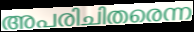
അപരിചിതരെന്ന